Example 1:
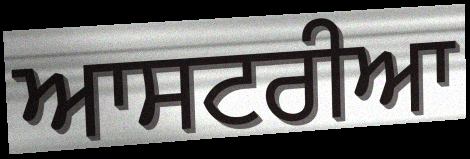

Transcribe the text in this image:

ਆਸਟਰੀਆ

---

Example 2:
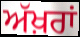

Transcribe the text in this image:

ਅੱਖ਼ਰਾਂ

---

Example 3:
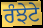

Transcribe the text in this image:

ਰੰਝੇਟੇ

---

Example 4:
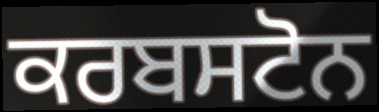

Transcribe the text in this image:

ਕਰਬਸਟੋਨ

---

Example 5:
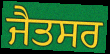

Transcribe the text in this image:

ਜੈਤਸਰ